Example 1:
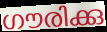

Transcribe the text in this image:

ഗൗരിക്കു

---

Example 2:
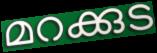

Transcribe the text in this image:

മറക്കുട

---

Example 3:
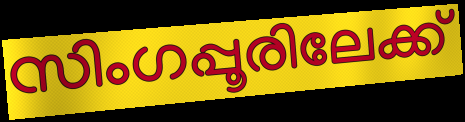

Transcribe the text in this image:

സിംഗപ്പൂരിലേക്ക്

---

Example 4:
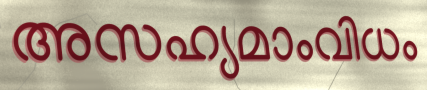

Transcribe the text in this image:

അസഹ്യമാംവിധം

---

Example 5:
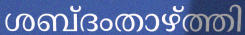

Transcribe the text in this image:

ശബ്ദംതാഴ്ത്തി